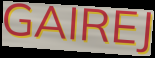
GAIREJ